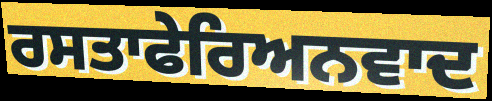
ਰਸਤਾਫੇਰਿਅਨਵਾਦ